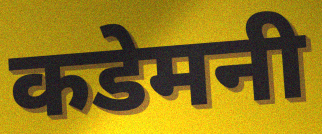
कडेमनी